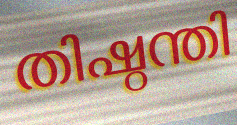
തിഷ്ഠന്തി